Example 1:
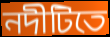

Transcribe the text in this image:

নদীটিতে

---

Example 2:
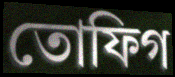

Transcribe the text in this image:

তোফিগ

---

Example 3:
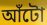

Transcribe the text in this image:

আঁটো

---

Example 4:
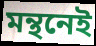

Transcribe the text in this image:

মন্থনেই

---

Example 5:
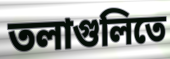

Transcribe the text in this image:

তলাগুলিতে